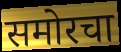
समोरचा